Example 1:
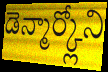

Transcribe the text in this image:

డెన్మార్క్లోని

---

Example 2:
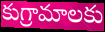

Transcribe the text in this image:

కుగ్రామాలకు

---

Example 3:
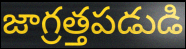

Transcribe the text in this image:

జాగ్రత్తపడుడి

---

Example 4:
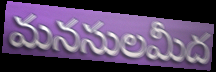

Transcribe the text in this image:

మనసులమీద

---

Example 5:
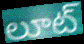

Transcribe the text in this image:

లూట్